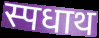
स्पधाथ